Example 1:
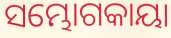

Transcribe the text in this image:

ସମ୍ଭୋଗକାୟା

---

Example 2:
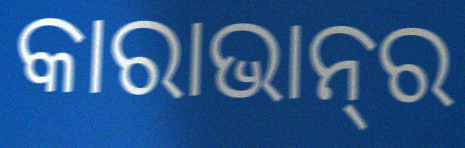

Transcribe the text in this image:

କାରାଭାନ୍‍ର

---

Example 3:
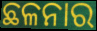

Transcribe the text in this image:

ଛଳନାର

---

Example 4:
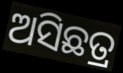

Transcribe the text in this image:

ଅସିଛତ୍ର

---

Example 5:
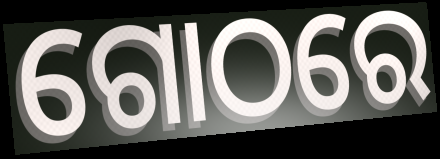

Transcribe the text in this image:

ଗୋଠରେ